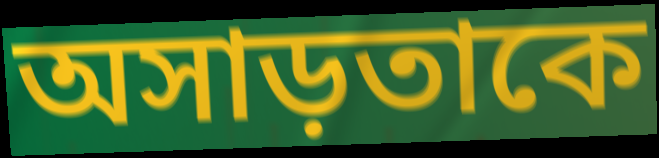
অসাড়তাকে